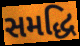
સમદ્ધિ